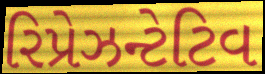
રિપ્રેઝન્ટેટિવ